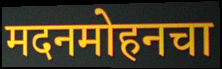
मदनमोहनचा